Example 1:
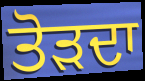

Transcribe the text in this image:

ਤੋੜਦਾ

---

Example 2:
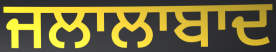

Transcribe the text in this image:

ਜਲਾਲਾਬਾਦ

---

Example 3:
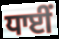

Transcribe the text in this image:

ਧਾਈਂ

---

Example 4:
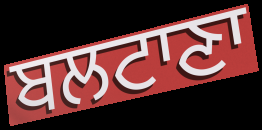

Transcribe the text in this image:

ਬਲਟਾਣਾ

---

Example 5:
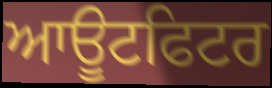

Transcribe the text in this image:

ਆਊਟਫਿਟਰ